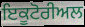
ਇਕੂਟੋਰੀਅਲ